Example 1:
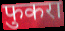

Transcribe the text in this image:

फुकरा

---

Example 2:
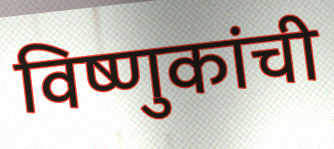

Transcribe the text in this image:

विष्णुकांची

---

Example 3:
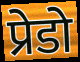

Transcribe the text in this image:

प्रेडो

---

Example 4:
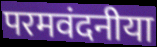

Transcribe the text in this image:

परमवंदनीया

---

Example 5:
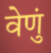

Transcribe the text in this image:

वेणुं